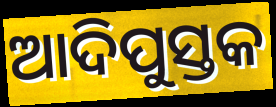
ଆଦିପୁସ୍ତକ